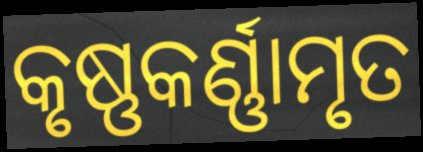
କୃଷ୍ଣକର୍ଣ୍ଣାମୃତ